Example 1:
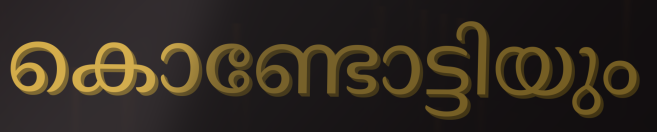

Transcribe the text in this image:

കൊണ്ടോട്ടിയും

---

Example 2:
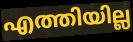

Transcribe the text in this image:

എത്തിയില്ല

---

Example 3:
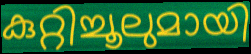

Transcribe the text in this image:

കുറ്റിച്ചൂലുമായി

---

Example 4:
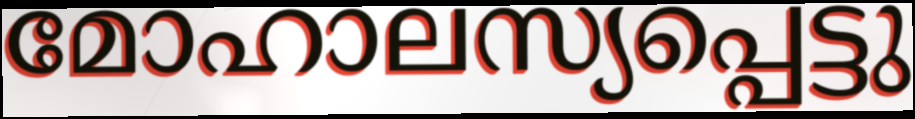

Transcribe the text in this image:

മോഹാലസ്യപ്പെട്ടു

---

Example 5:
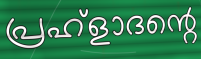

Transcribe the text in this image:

പ്രഹ്ളാദന്റെ